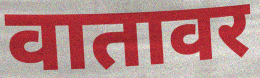
वातावर